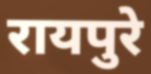
रायपुरे